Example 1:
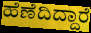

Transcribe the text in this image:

ಹೆಣೆದಿದ್ದಾರೆ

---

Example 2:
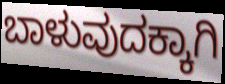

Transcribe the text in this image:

ಬಾಳುವುದಕ್ಕಾಗಿ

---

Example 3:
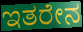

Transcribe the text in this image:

ಇತರೇನ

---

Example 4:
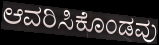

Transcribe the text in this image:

ಆವರಿಸಿಕೊಂಡವು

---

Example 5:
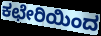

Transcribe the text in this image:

ಕಛೇರಿಯಿಂದ